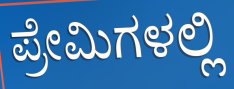
ಪ್ರೇಮಿಗಳಲ್ಲಿ